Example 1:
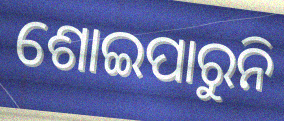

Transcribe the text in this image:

ଶୋଇପାରୁନି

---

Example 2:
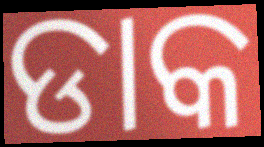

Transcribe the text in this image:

ଡାକ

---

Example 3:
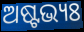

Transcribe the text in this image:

ଅଷ୍ଟଭ୍ୟଃ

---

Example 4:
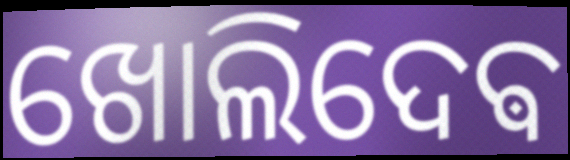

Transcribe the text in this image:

ଖୋଲିଦେଵ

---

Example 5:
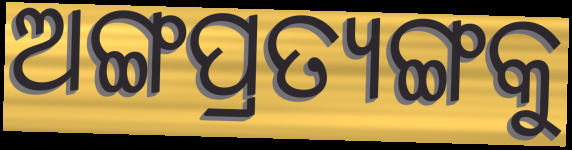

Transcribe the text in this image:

ଅଙ୍ଗପ୍ରତ୍ୟଙ୍ଗକୁ